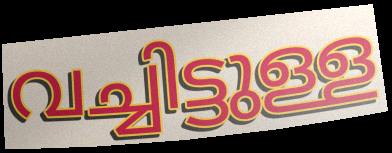
വച്ചിട്ടുള്ള